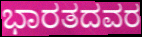
ಭಾರತದವರ